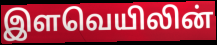
இளவெயிலின்